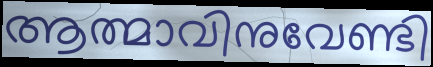
ആത്മാവിനുവേണ്ടി